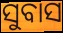
ସୁବାସ